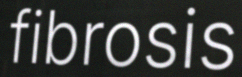
fibrosis